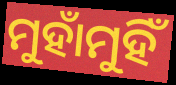
ମୁହାଁମୁହିଁ